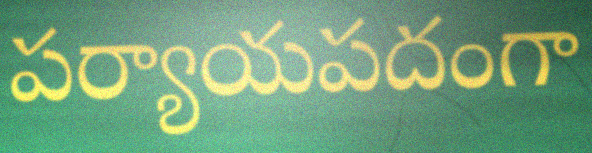
పర్యాయపదంగా